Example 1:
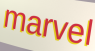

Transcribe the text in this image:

marvel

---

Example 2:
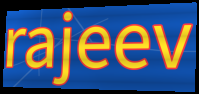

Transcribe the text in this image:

rajeev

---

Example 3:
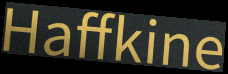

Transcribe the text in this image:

Haffkine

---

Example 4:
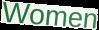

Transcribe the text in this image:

Women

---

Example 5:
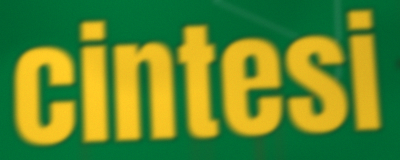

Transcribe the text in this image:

cintesi